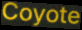
Coyote